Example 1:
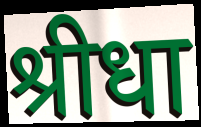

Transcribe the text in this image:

श्रीधा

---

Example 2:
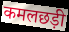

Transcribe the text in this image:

कमलछड़ी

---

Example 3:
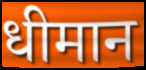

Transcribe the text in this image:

धीमान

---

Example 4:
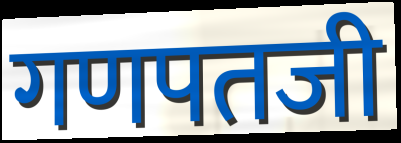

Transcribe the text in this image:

गणपतजी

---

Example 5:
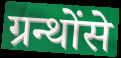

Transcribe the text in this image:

ग्रन्थोंसे